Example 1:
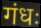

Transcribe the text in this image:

गंधः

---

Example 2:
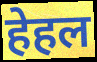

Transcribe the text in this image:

हेहल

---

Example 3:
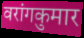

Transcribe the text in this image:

वरांगकुमार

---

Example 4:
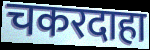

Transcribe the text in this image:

चकरदाहा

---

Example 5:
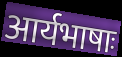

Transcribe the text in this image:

आर्यभाषाः